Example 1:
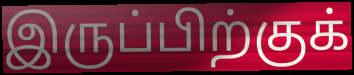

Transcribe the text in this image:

இருப்பிற்குக்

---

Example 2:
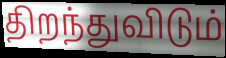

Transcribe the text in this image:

திறந்துவிடும்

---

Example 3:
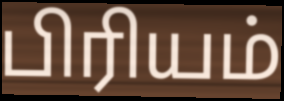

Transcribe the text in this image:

பிரியம்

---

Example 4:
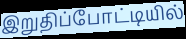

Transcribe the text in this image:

இறுதிப்போட்டியில்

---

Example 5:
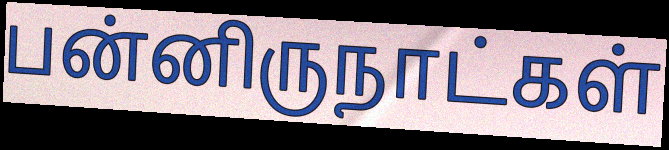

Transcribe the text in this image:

பன்னிருநாட்கள்